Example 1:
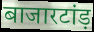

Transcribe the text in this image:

बाजारटांड़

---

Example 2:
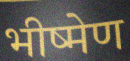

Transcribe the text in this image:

भीष्मेण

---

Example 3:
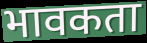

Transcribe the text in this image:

भावकता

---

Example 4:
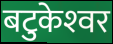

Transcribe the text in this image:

बटुकेश्‍वर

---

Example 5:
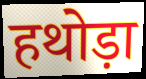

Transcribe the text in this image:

हथोड़ा